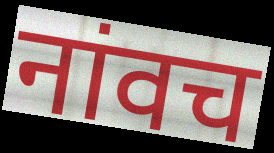
नांवच